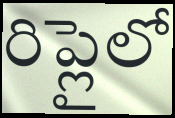
రిప్లైలో